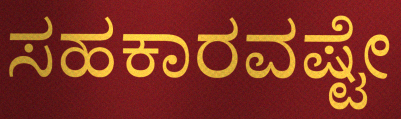
ಸಹಕಾರವಷ್ಟೇ